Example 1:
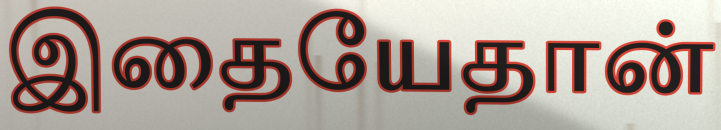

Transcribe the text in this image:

இதையேதான்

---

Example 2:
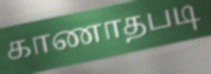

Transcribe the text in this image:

காணாதபடி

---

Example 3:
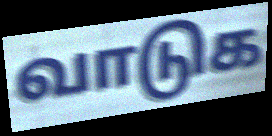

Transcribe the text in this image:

வாடுக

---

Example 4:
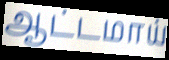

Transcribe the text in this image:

ஆட்டமாய்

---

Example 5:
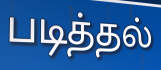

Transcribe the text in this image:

படித்தல்